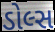
ડોલ્સ